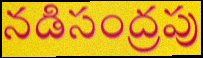
నడిసంద్రపు